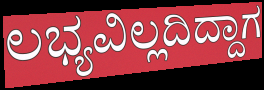
ಲಭ್ಯವಿಲ್ಲದಿದ್ದಾಗ